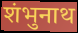
शंभुनाथ